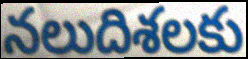
నలుదిశలకు